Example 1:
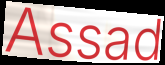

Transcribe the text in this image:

Assad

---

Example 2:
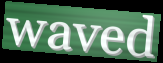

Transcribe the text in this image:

waved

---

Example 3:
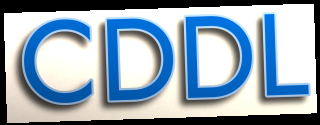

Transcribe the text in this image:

CDDL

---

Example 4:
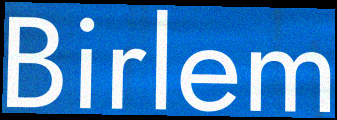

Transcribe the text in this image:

Birlem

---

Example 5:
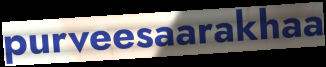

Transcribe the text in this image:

purveesaarakhaa